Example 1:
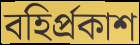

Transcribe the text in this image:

বহিৰ্প্ৰকাশ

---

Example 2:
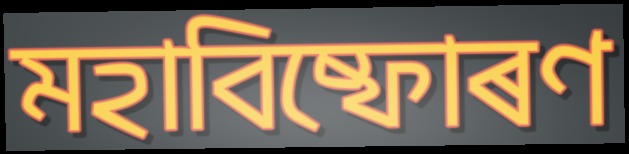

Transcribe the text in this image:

মহাবিষ্ফোৰণ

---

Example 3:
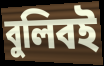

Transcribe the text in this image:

বুলিবই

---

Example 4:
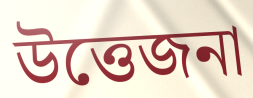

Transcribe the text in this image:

উত্তেজনা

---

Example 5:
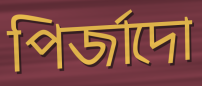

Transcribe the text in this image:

পিৰ্জাদো